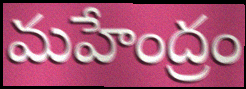
మహేంద్రం